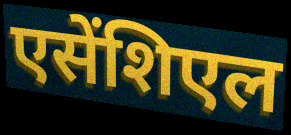
एसेंशिएल